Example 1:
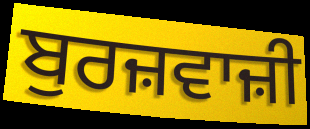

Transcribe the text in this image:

ਬੁਰਜ਼ਵਾਜ਼ੀ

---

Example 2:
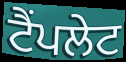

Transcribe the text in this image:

ਟੈਂਪਲੇਟ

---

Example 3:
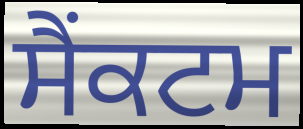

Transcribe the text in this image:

ਸੈੰਕਟਮ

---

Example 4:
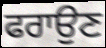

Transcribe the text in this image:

ਫਰਾਉਣ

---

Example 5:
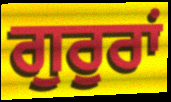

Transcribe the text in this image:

ਗੁਰੁਰਾਂ